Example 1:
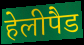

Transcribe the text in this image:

हेलीपैड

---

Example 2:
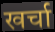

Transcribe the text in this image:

खर्चा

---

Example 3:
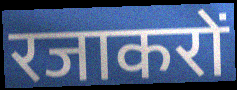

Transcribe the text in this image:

रजाकरों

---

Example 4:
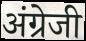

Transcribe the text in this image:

अंग्रेजी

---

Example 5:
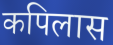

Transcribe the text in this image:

कपिलास